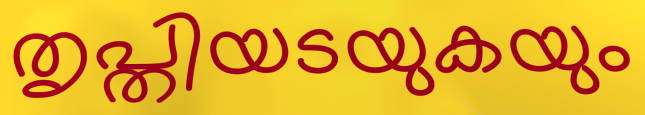
തൃപ്തിയടയുകയും